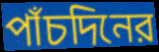
পাঁচদিনের